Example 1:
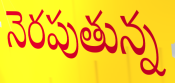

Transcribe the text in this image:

నెరపుతున్న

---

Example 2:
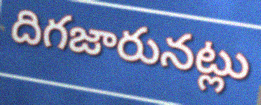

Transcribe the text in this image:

దిగజారునట్లు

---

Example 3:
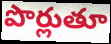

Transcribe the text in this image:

పొర్లుతూ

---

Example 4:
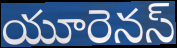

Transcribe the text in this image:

యూరెనస్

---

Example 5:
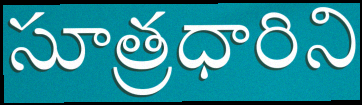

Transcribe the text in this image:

సూత్రధారిని